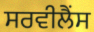
ਸਰਵੀਲੈਂਸ